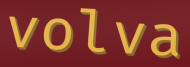
volva